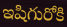
ఇషిగురోకి